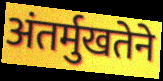
अंतर्मुखतेने